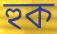
হুক